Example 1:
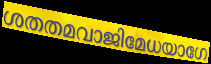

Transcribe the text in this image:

ശതതമവാജിമേധയാഗേ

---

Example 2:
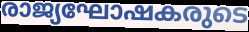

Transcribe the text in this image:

രാജ്യഘോഷകരുടെ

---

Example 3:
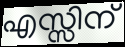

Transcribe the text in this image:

എസ്സിന്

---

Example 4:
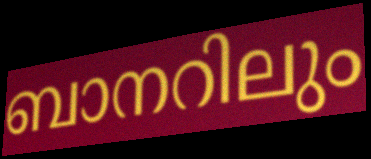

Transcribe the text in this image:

ബാനറിലും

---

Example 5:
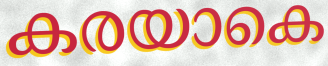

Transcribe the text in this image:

കരയാകെ